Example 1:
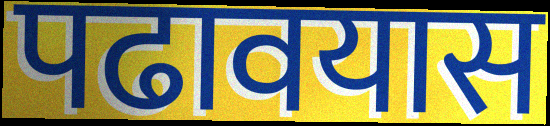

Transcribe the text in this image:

पढावयास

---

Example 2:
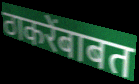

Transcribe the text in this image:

ठाकरेंबाबत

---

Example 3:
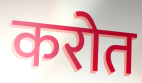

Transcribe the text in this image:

करोत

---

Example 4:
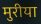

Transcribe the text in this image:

मुरीया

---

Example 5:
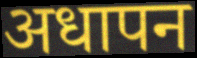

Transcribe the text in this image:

अधापन